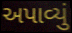
અપાવ્યું